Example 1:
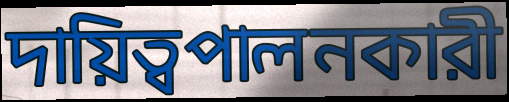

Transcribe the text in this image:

দায়িত্বপালনকারী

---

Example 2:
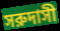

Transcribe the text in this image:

সরুদাসী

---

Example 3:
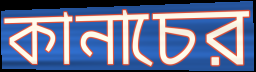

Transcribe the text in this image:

কানাচের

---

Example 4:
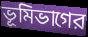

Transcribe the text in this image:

ভূমিভাগের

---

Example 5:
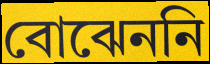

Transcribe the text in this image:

বোঝেননি